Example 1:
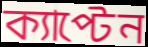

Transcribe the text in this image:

ক্যাপ্টেন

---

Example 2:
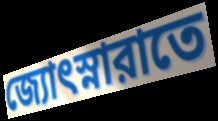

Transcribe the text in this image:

জ্যোৎস্নারাতে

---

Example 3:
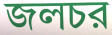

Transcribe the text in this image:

জলচর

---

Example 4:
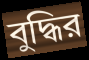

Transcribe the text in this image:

বুদ্ধির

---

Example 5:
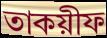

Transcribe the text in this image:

তাকয়ীফ